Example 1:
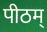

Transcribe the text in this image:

पीठम्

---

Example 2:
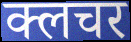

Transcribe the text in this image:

क्लचर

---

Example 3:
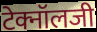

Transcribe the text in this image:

टेक्‍नॉलजी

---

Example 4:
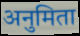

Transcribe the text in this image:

अनुमिता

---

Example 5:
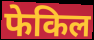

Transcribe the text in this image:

फेकिल